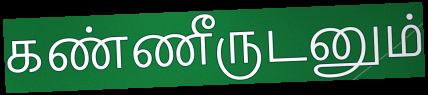
கண்ணீருடனும்